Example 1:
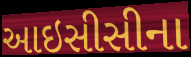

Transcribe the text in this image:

આઇસીસીના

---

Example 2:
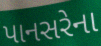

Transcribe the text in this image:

પાનસરેના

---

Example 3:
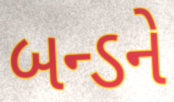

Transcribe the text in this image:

બન્ડને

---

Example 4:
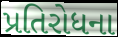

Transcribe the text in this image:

પ્રતિરોધના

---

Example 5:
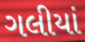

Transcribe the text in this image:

ગલીયાં